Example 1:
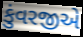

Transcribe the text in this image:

કુંવરજીએ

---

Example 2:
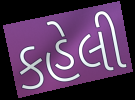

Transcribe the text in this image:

કહેલી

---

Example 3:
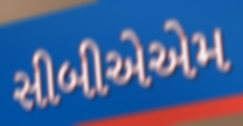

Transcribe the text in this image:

સીબીએએમ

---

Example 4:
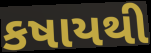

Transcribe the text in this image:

કષાયથી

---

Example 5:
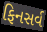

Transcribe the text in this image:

ફિનસર્વ